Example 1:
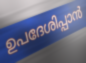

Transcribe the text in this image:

ഉപദേശിപ്പാൻ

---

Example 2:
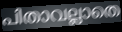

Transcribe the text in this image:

പിതാവല്ലാതെ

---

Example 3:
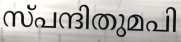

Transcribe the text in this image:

സ്പന്ദിതുമപി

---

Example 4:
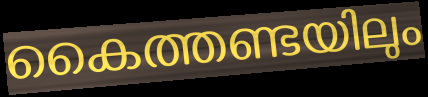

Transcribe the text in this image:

കൈത്തണ്ടയിലും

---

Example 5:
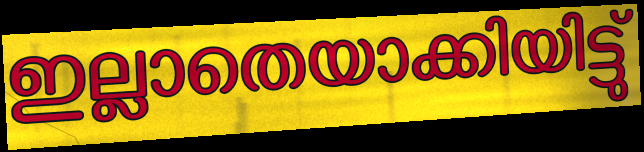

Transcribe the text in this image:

ഇല്ലാതെയാക്കിയിട്ടു്